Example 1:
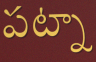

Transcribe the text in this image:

పట్నా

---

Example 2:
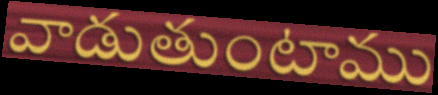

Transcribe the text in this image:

వాడుతుంటాము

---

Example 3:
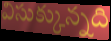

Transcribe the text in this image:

విసుక్కున్నది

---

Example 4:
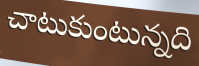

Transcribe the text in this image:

చాటుకుంటున్నది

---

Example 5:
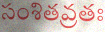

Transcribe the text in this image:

సంశితవ్రతః